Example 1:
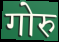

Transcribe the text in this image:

गोरु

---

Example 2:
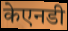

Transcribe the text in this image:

केएनडी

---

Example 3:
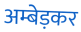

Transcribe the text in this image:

अम्बेड़कर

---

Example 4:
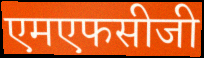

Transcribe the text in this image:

एमएफसीजी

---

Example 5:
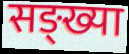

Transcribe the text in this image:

सङ्ख्या